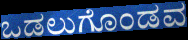
ಒಡಲುಗೊಂಡವ